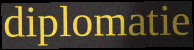
diplomatie